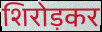
शिरोड़कर